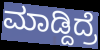
ಮಾಡ್ದಿದ್ರೆ